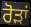
ਰੋੜਾਂ